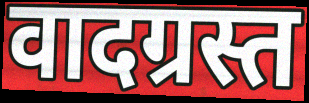
वादग्रस्त